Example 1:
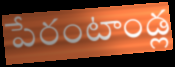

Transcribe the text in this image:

పేరంటాండ్ల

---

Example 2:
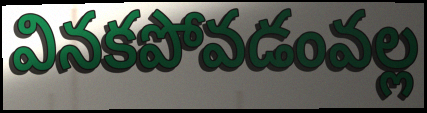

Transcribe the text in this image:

వినకపోవడంవల్ల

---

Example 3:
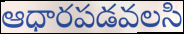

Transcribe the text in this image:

ఆధారపడవలసి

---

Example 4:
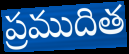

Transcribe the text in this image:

ప్రముదిత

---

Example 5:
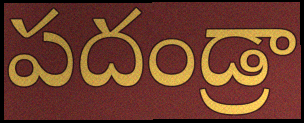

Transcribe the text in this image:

పదండ్రా